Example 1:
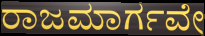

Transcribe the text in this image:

ರಾಜಮಾರ್ಗವೇ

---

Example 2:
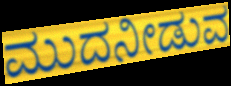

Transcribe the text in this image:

ಮುದನೀಡುವ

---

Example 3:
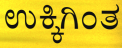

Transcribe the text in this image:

ಉಕ್ಕಿಗಿಂತ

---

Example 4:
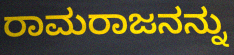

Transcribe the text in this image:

ರಾಮರಾಜನನ್ನು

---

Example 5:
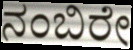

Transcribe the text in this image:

ನಂಬಿರೇ